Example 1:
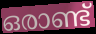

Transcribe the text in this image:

ഒരാണ്ട്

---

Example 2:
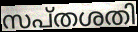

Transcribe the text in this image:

സപ്തശതി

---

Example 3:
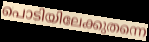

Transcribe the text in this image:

പൊടിയിലേക്കുതന്നെ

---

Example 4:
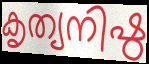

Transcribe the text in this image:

കൃത്യനിഷ്ഠ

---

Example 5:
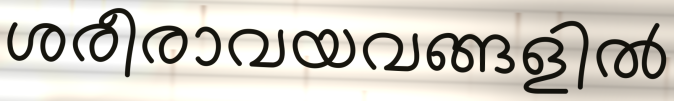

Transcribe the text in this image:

ശരീരാവയവങ്ങളിൽ